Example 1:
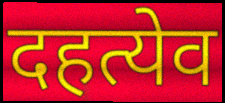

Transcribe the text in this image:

दहत्येव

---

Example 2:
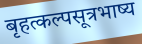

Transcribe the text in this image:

बृहत्कल्पसूत्रभाष्य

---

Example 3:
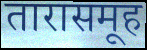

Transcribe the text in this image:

तारासमूह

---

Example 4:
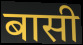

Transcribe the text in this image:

बासी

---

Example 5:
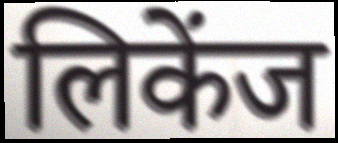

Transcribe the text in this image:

लिकेंज